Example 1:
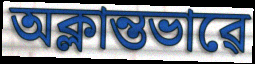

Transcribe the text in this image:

অক্লান্তভাৱে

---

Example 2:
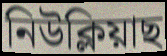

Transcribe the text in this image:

নিউক্লিয়াছ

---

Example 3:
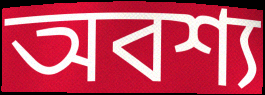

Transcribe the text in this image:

অবশ্য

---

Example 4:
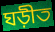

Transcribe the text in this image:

ঘড়ীত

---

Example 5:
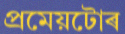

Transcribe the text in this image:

প্ৰমেয়টোৰ